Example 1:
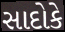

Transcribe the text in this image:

સાદોકે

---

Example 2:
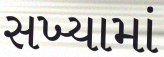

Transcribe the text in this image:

સખ્યામાં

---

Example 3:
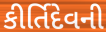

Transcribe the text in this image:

કીર્તિદેવની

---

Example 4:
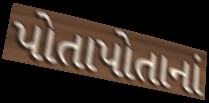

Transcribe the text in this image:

પોતાપોતાનાં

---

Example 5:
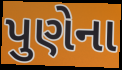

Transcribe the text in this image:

પુણેના